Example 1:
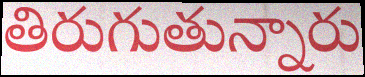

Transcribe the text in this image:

తిరుగుతున్నారు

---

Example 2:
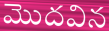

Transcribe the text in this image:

మొదవిన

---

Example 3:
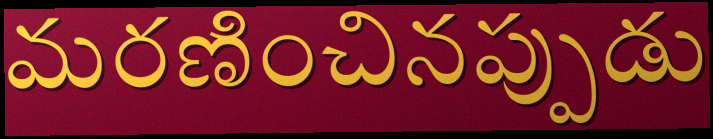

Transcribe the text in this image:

మరణించినప్పుడు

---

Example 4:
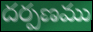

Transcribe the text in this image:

దర్పణము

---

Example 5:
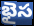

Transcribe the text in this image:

భైస